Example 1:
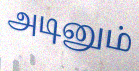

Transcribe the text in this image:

அடினும்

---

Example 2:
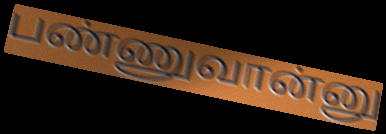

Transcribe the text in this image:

பண்ணுவான்னு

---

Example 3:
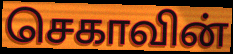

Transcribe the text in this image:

செகாவின்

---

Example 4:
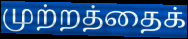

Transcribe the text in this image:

முற்றத்தைக்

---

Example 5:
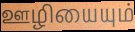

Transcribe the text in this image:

ஊழியையும்